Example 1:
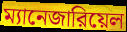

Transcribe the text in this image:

ম্যানেজারিয়েল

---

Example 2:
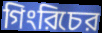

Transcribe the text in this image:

গিংরিচের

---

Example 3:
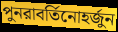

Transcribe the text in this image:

পুনরাবর্তিনোহর্জুন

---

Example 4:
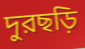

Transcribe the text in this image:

দুরছড়ি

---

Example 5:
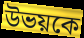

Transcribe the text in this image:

উভয়কে